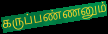
கருப்பண்ணனும்